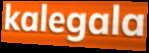
kalegala